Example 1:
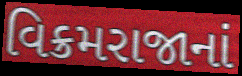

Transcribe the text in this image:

વિક્રમરાજાનાં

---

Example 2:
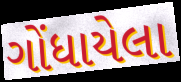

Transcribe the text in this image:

ગોંધાયેલા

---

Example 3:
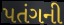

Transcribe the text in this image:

પતંગની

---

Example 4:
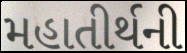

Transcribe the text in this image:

મહાતીર્થની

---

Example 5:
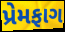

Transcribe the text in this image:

પ્રેમફાગ